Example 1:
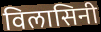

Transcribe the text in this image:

विलासिनी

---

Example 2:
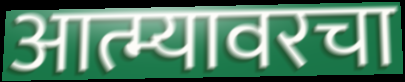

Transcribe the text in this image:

आत्म्यावरचा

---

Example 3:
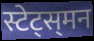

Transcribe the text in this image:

स्टेट्स्‌मन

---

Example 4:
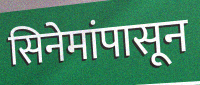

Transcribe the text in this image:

सिनेमांपासून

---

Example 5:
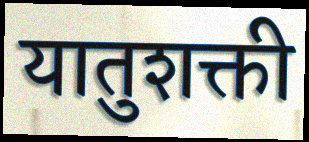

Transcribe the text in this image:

यातुशक्ती